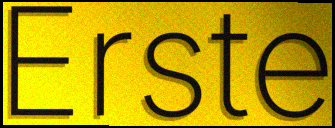
Erste